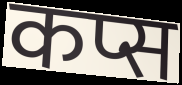
कप्स